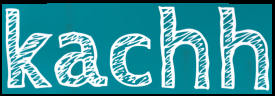
kachh